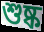
শুষ্ক